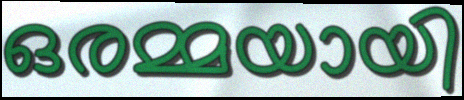
ഒരമ്മയായി